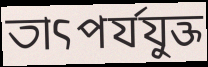
তাৎপর্যযুক্ত